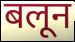
बलून